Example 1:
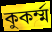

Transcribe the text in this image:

কুকর্ম্ম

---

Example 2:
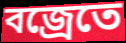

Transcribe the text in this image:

বজ্রেতে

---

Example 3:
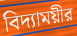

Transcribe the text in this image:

বিদ্যাময়ীর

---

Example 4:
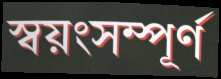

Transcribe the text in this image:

স্বয়ংসম্পূর্ণ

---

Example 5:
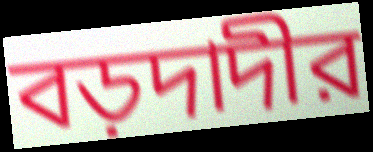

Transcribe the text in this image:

বড়দাদীর